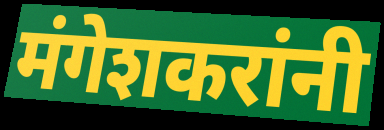
मंगेशकरांनी